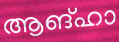
ആങ്ഹാ